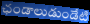
ఛండాలుడుండేటి